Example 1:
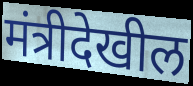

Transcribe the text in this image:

मंत्रीदेखील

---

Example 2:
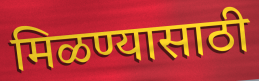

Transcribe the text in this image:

मिळण्‍यासाठी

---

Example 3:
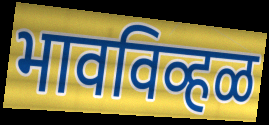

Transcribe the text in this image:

भावविव्हळ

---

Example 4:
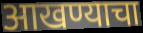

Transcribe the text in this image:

आखण्याचा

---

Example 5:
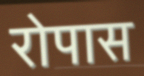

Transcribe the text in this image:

रोपास